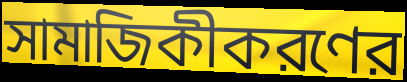
সামাজিকীকরণের